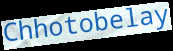
Chhotobelay